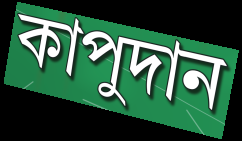
কাপুদান